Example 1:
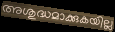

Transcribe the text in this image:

അശുദ്ധമാക്കുകയില്ല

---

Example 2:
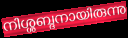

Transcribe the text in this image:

നിശ്ശബ്ദനായിരുന്നു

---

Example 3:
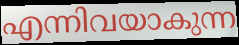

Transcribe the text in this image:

എന്നിവയാകുന്ന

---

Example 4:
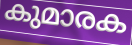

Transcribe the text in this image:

കുമാരക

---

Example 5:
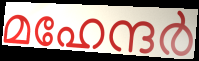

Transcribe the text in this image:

മഹേന്ദർ